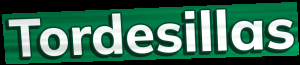
Tordesillas